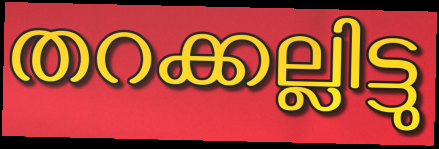
തറക്കല്ലിട്ടു